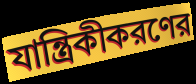
যান্ত্রিকীকরণের